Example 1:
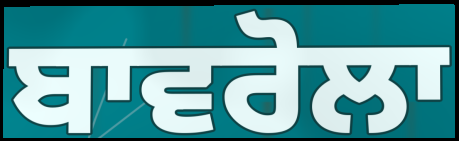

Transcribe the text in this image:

ਬਾਵਰੋਲਾ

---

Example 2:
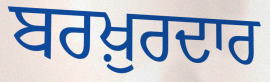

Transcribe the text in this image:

ਬਰਖ਼ੁਰਦਾਰ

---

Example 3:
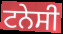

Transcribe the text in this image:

ਟਨੇਸੀ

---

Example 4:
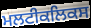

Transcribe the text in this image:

ਮਲਟੀਕਲਿਕਸ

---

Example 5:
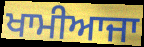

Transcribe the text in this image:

ਖਾਮੀਆਜਾ